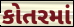
કોતરમાં